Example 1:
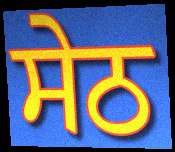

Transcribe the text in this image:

ਸੇਠ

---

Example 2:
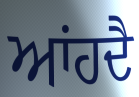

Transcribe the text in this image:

ਆਂਹਦੈ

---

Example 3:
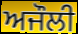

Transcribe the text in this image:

ਅਜੌਲੀ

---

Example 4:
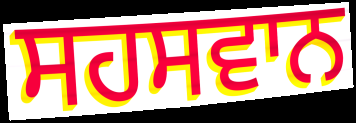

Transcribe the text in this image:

ਸਹਸਵਾਨ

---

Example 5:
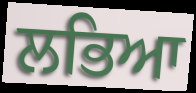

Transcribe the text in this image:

ਲਭਿਆ